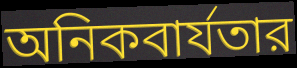
অনিকবার্যতার